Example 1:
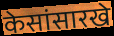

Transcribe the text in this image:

केसांसारखे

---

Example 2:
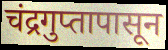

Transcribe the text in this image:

चंद्रगुप्तापासून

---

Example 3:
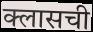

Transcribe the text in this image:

क्‍लासची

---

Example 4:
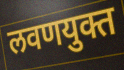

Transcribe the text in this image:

लवणयुक्त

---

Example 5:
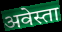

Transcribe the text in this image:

अवेस्ता